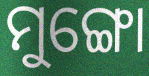
ମୁଙ୍ଗୋ